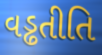
વડ્ઢતીતિ